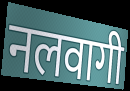
नलवागी